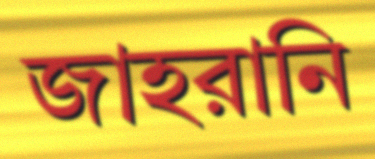
জাহরানি